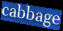
cabbage